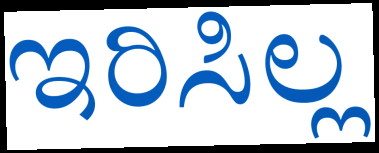
ಇರಿಸಿಲ್ಲ